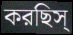
করছিস্